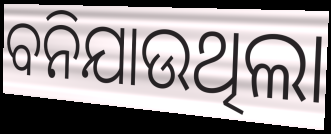
ବନିଯାଉଥିଲା